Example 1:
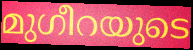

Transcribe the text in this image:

മുഗീറയുടെ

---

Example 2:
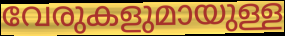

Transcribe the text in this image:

വേരുകളുമായുള്ള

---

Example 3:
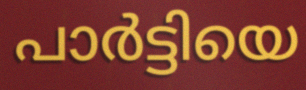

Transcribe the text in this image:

പാർട്ടിയെ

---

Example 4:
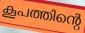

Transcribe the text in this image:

കൂപത്തിന്റെ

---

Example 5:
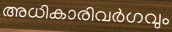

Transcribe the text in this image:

അധികാരിവർഗവും